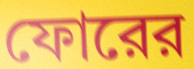
ফোরের